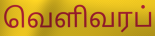
வெளிவரப்